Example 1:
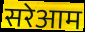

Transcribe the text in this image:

सरेआम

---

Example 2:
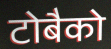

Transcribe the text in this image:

टोबैको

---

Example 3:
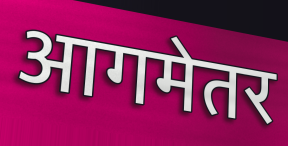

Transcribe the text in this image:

आगमेतर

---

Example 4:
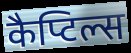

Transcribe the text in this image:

कैप्टिल्स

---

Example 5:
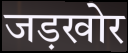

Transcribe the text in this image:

जड़खोर